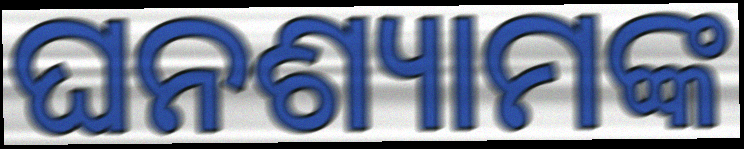
ଘନଶ୍ୟାମଙ୍କ